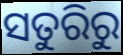
ସତୁରିରୁ